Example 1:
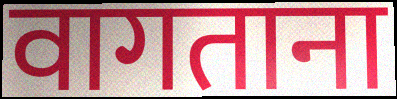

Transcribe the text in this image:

वागताना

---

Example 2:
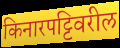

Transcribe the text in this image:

किनारपट्टिवरील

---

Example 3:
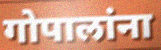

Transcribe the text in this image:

गोपालांना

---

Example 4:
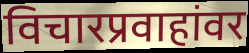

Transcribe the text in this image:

विचारप्रवाहांवर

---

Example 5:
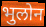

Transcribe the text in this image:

भुलोन